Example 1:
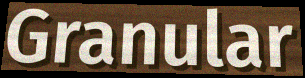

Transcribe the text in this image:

Granular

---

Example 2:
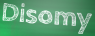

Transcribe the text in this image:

Disomy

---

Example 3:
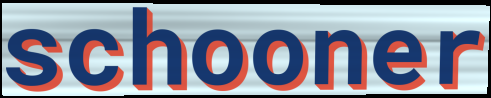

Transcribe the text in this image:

schooner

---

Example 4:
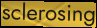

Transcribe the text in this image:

sclerosing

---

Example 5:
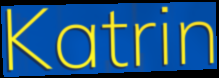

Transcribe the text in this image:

Katrin